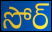
సోర్